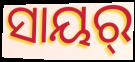
ସାୟର୍